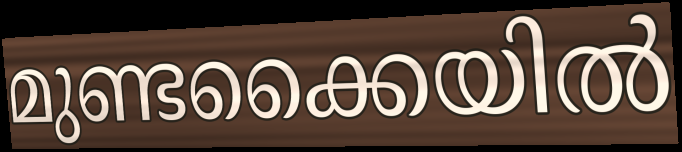
മുണ്ടക്കൈയിൽ